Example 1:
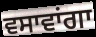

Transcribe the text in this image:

ਵਸਾਵਾਂਗਾ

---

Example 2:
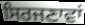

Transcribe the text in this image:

ਸਿਰਜਣਾਵਾਂ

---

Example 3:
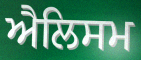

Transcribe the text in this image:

ਐਲਿਸਮ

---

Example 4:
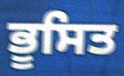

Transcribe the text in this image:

ਭੂਸਿਤ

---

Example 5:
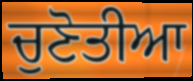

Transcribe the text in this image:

ਚੁਣੋਤੀਆ